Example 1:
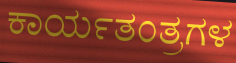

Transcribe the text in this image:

ಕಾರ್ಯತಂತ್ರಗಳ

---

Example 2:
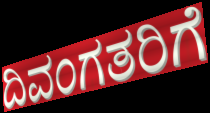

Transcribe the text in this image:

ದಿವಂಗತರಿಗೆ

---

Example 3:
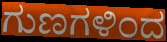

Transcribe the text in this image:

ಗುಣಗಳಿಂದ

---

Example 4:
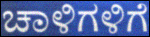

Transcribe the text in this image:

ಚಾಳಿಗಳಿಗೆ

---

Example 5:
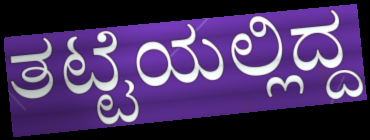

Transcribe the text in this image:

ತಟ್ಟೆಯಲ್ಲಿದ್ದ